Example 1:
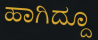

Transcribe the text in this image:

ಹಾಗಿದ್ದೂ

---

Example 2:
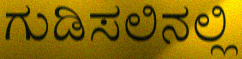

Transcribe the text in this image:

ಗುಡಿಸಲಿನಲ್ಲಿ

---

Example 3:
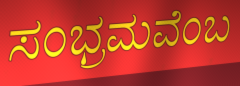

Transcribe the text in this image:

ಸಂಭ್ರಮವೆಂಬ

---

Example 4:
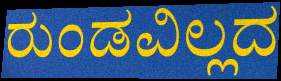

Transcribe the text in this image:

ರುಂಡವಿಲ್ಲದ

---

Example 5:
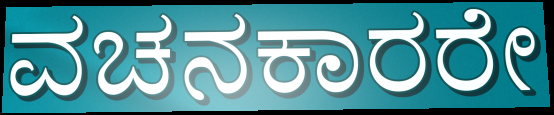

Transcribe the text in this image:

ವಚನಕಾರರೇ